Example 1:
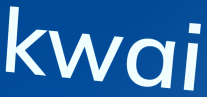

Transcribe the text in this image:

kwai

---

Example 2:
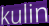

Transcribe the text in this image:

kulin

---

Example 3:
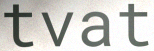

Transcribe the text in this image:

tvat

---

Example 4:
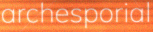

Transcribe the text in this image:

archesporial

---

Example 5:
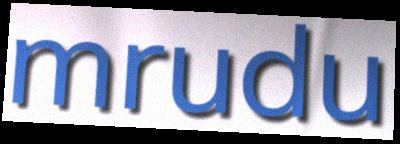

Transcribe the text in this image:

mrudu